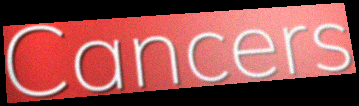
Cancers